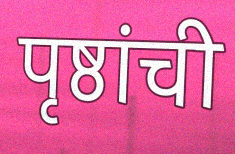
पृष्ठांची